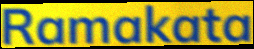
Ramakata